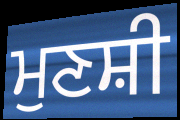
ਮੁਣਸ਼ੀ